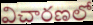
విచారణలో